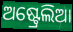
ଅଷ୍ଟ୍ରେଲିଆ